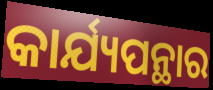
କାର୍ଯ୍ୟପନ୍ଥାର